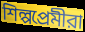
শিল্পপ্রেমীরা